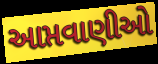
આપ્તવાણીઓ